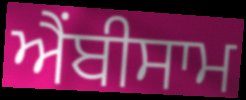
ਐਂਬੀਸਾਮ